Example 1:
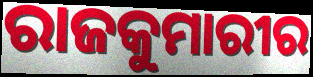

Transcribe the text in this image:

ରାଜକୁମାରୀର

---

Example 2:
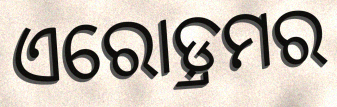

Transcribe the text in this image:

ଏରୋଡ଼୍ରମର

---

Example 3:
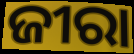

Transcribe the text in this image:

ଜୀରା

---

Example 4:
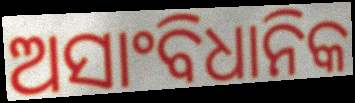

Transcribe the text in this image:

ଅସାଂବିଧାନିକ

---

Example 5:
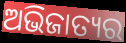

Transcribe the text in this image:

ଅଭିଜାତ୍ୟର